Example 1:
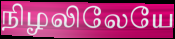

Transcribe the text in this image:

நிழலிலேயே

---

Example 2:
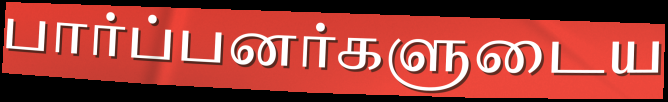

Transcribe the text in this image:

பார்ப்பனர்களுடைய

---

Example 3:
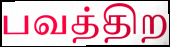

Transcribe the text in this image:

பவத்திற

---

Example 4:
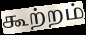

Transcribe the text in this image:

கூற்றம்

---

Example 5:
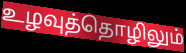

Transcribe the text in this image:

உழவுத்தொழிலும்